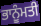
ਭਾਨੂੰਮਤੀ